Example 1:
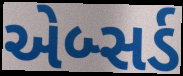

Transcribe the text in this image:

એબ્સર્ડ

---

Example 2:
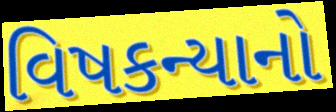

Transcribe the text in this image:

વિષકન્યાનો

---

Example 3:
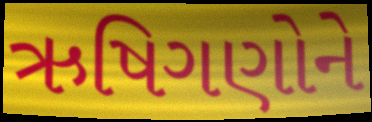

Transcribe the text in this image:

ઋષિગણોને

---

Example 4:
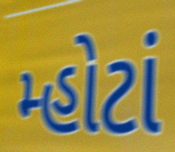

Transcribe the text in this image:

મ્હોટાં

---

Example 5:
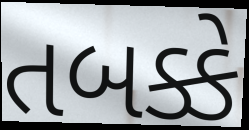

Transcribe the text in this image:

તબક્કે